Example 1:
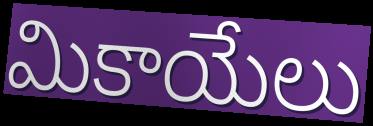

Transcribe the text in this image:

మికాయేలు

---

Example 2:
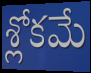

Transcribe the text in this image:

శ్లోకమే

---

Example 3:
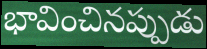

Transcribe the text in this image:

భావించినప్పుడు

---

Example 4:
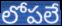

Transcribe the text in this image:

లోపలే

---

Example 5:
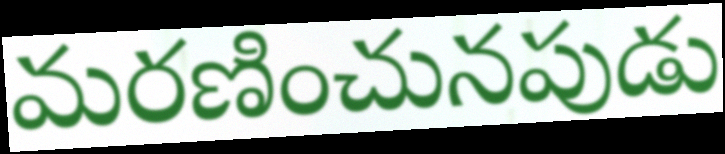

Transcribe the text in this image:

మరణించునపుడు